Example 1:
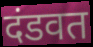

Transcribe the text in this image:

दंडवत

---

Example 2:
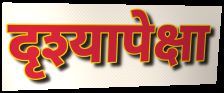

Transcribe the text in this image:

दृश्यापेक्षा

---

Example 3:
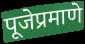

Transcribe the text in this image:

पूजेप्रमाणे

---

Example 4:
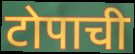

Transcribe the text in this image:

टोपाची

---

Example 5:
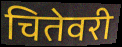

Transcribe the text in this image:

चितेवरी